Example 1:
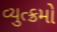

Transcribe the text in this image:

વ્યુત્ક્રમો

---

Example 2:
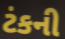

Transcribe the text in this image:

ટંકની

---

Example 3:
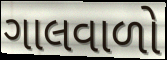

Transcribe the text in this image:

ગાલવાળો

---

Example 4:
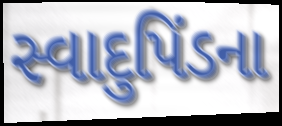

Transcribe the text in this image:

સ્વાદુપિંડના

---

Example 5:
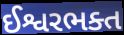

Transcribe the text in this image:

ઈશ્વરભક્ત